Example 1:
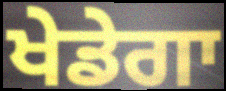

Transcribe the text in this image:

ਖੇਡੇਗਾ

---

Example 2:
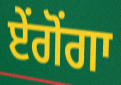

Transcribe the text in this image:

ਏਂਗੋਂਗਾ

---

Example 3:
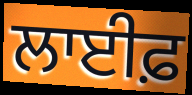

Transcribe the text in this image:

ਲਾਈਫ਼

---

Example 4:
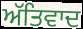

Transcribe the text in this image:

ਅੱਤਿਵਾਦ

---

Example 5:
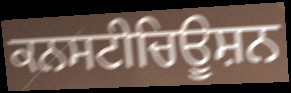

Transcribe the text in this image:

ਕਨਸਟੀਚਿਊਸ਼ਨ